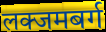
लक्जमबर्ग